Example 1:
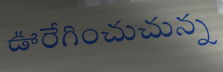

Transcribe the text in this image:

ఊరేగించుచున్న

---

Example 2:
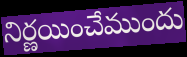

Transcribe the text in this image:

నిర్ణయించేముందు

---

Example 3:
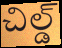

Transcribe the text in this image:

చిల్డ్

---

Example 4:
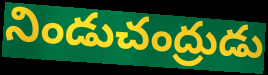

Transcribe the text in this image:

నిండుచంద్రుడు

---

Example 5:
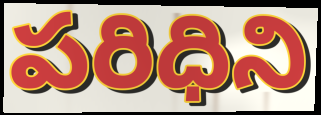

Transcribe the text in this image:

పరిధిని